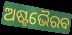
ଅଷ୍ଟଭୈରବ